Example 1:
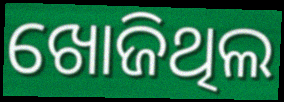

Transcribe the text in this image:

ଖୋଜିଥିଲ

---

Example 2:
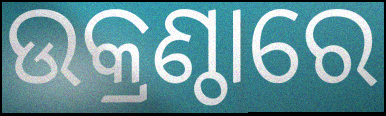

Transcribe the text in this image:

ଉକ୍ରଣ୍ଠାରେ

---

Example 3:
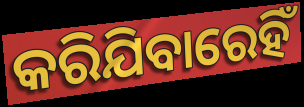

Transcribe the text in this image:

କରିଯିବାରେହିଁ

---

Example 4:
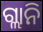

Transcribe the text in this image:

ଗ୍ଲାନି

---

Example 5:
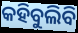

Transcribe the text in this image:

କହିବୁଲିବି